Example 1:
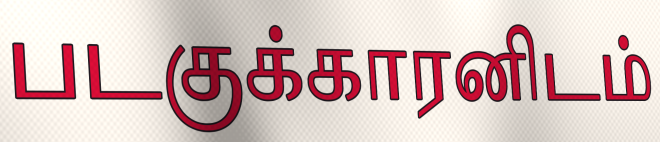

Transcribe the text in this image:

படகுக்காரனிடம்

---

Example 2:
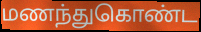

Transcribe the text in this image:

மணந்துகொண்ட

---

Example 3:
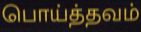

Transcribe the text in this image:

பொய்த்தவம்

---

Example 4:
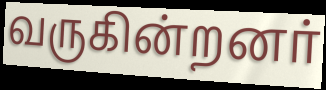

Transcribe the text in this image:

வருகின்றனர்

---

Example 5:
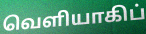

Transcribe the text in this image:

வெளியாகிப்